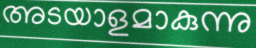
അടയാളമാകുന്നു